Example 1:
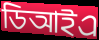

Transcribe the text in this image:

ডিআইএ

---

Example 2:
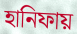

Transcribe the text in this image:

হানিফায়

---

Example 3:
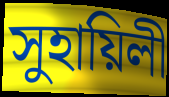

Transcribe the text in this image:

সুহায়িলী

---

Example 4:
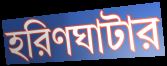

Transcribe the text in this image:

হরিণঘাটার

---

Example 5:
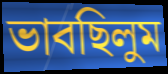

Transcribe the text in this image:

ভাবছিলুম